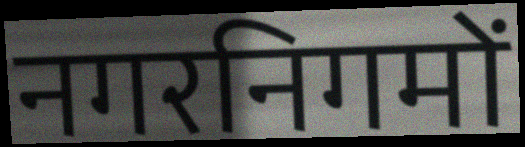
नगरनिगमों